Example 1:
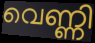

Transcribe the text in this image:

വെണ്ണി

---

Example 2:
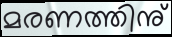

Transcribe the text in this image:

മരണത്തിനു്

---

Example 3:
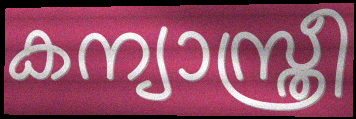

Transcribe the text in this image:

കന്യാസ്ത്രീ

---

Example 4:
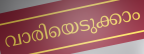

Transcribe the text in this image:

വാരിയെടുക്കാം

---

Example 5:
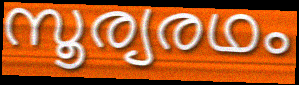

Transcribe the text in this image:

സൂര്യരഥം